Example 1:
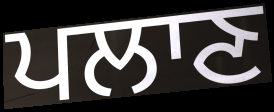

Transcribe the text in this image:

ਪਲਾਣ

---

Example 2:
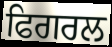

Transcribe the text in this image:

ਫਿਗਰਲ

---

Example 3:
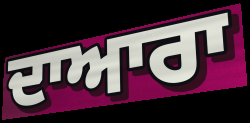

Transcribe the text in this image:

ਦਾਆਰਾ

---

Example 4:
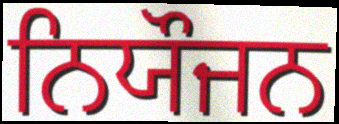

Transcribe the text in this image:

ਨਿਯੌਜਨ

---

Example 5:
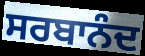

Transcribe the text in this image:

ਸਰਬਾਨੰਦ